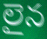
లైన